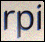
rpi